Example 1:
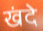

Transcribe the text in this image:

खंदे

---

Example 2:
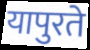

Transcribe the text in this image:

यापुरते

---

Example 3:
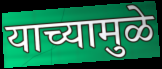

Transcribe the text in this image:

याच्यामुळे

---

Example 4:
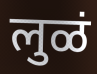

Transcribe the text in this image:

लुळं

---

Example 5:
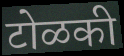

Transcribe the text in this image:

टोळकी